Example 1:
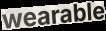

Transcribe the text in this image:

wearable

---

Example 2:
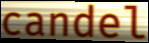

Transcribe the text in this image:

candel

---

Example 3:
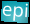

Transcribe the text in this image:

epi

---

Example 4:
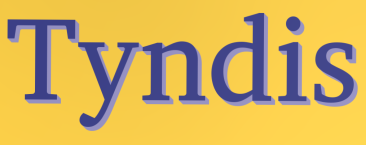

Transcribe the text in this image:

Tyndis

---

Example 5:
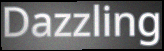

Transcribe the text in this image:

Dazzling